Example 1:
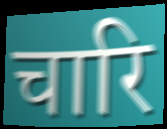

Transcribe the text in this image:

चारि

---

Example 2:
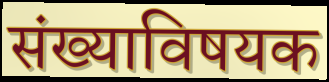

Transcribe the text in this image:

संख्याविषयक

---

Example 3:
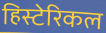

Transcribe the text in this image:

हिस्टेरिकल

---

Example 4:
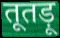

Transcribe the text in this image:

तूतड़ू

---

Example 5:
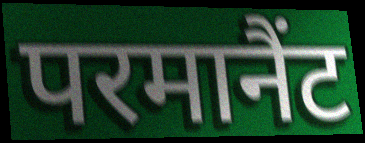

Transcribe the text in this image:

परमानैंट